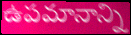
ఉపమానాన్ని